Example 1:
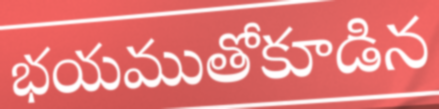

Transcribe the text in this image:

భయముతోకూడిన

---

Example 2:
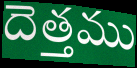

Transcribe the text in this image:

దెత్తము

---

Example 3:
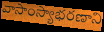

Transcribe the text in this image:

వాసాంస్యాభరణాని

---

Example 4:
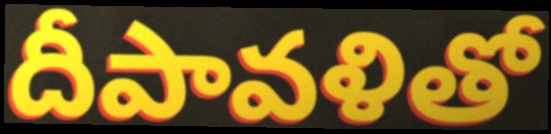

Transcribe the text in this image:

దీపావళితో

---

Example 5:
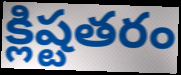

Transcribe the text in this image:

క్లిష్టతరం